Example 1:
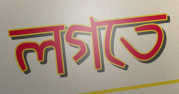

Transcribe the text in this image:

লগতে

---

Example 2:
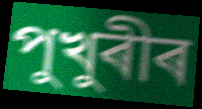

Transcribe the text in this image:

পুখুৰীৰ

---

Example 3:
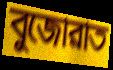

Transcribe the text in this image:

বুজোৱাত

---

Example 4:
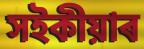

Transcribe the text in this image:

সইকীয়াৰ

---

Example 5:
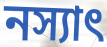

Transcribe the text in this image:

নস্যাৎ